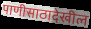
पाणीसाठादेखील